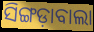
ସିଙ୍ଗଡ଼ାବାଲା